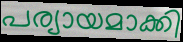
പര്യായമാക്കി